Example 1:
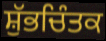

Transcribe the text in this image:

ਸ਼ੁੱਭਚਿੰਤਕ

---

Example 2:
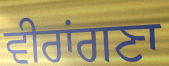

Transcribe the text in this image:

ਵੀਰਾਂਗਣਾ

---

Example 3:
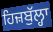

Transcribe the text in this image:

ਹਿਜ਼ਬੁੱਲ੍ਹਾ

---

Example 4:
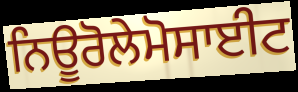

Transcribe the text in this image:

ਨਿਊਰੋਲੇਮੋਸਾਈਟ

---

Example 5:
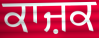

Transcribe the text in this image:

ਕਾਜ਼ਕ